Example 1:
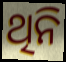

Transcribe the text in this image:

ଥିନି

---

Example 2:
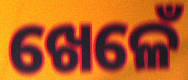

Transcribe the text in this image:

ଖେଳେଁ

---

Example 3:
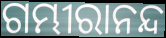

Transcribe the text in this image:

ଗମ୍ଭୀରାନନ୍ଦ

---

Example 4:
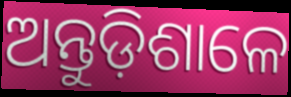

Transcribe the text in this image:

ଅନ୍ତୁଡ଼ିଶାଳେ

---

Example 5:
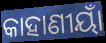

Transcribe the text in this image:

କାହାଣୀୟାଁ